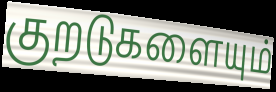
குறடுகளையும்